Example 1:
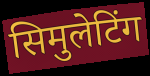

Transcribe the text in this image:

सिमुलेटिंग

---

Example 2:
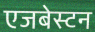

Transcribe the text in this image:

एजबेस्टन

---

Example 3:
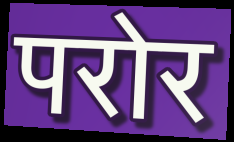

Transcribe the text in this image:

परोर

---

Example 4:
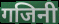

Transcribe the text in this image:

गजिनी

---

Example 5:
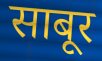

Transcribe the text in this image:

साबूर